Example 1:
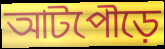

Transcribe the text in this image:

আটপৌড়ে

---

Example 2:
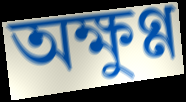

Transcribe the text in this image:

অক্ষুণ্ণ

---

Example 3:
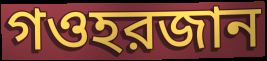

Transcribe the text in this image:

গওহরজান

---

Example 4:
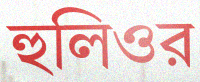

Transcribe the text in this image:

হুলিওর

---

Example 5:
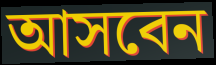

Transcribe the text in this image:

আসবেন